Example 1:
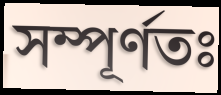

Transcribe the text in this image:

সম্পূর্ণতঃ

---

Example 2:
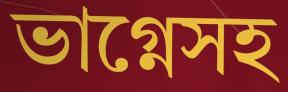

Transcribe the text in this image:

ভাগ্নেসহ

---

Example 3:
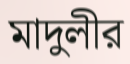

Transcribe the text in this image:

মাদুলীর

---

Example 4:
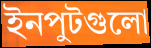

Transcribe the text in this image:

ইনপুটগুলো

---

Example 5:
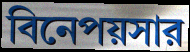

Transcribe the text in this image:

বিনেপয়সার